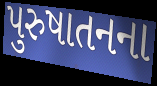
પુરુષાતનના